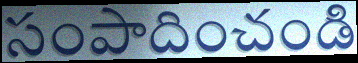
సంపాదించండి